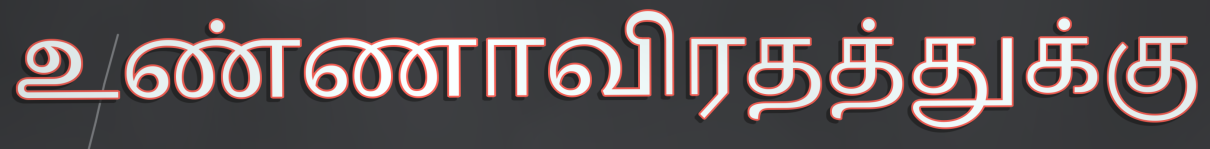
உண்ணாவிரதத்துக்கு